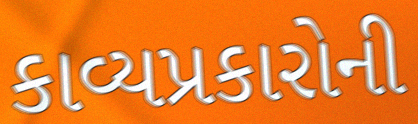
કાવ્યપ્રકારોની